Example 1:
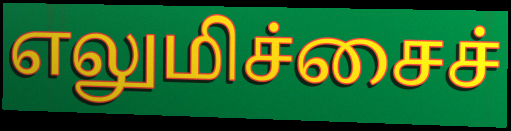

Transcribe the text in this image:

எலுமிச்சைச்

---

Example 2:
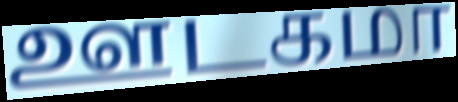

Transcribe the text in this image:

ஊடகமா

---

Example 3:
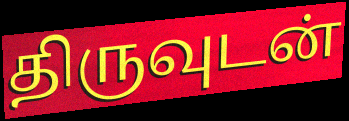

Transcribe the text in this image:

திருவுடன்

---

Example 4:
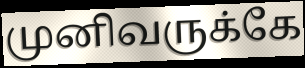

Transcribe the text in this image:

முனிவருக்கே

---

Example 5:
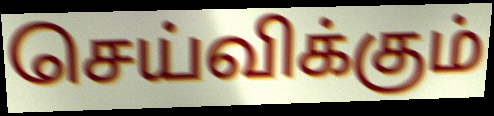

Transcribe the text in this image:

செய்விக்கும்